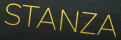
STANZA